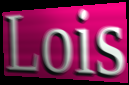
Lois